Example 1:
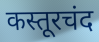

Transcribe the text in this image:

कस्तूरचंद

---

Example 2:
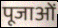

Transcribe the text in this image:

पूजाओं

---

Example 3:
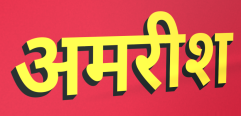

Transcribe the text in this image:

अमरीश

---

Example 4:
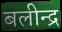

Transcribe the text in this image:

बलीन्द्र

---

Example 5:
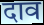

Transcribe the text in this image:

दाव